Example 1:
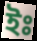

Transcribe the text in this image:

ইঃ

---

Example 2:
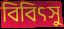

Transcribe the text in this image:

বিবিৎসু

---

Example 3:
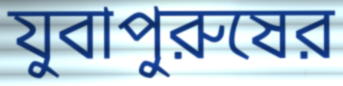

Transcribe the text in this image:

যুবাপুরুষের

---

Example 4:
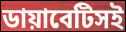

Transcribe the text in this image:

ডায়াবেটিসই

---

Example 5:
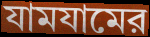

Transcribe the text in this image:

যামযামের